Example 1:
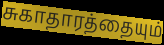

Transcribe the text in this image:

சுகாதாரத்தையும்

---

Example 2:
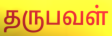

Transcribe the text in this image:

தருபவள்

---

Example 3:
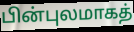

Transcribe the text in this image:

பின்புலமாகத்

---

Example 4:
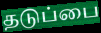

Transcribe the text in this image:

தடுப்பை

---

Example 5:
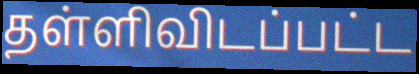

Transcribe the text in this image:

தள்ளிவிடப்பட்ட